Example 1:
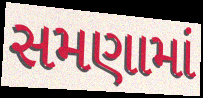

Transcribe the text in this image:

સમણામાં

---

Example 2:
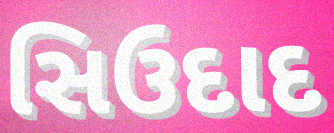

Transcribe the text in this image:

સિઉદાદ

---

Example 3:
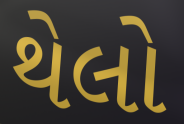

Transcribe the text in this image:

થેલો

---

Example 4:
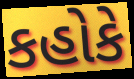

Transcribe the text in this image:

કહોકે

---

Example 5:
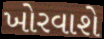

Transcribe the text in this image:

ખોરવાશે